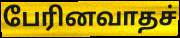
பேரினவாதச்